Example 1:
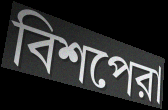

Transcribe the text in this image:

বিশপেরা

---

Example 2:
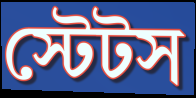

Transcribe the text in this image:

স্টেটস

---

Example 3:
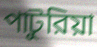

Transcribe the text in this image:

পাটুরিয়া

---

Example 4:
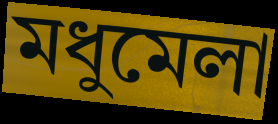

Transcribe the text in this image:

মধুমেলা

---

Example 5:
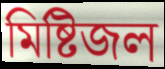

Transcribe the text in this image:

মিষ্টিজল